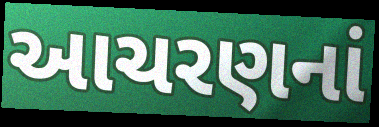
આચરણનાં